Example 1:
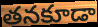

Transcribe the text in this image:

తనకూడా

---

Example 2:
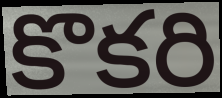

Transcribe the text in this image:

కొకరి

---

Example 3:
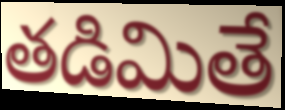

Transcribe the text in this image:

తడిమితే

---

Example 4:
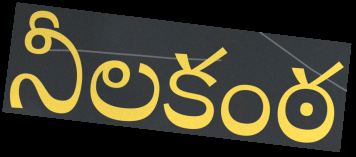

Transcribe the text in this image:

నీలకంఠ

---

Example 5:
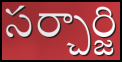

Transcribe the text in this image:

సర్చార్జి